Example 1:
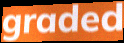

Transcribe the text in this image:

graded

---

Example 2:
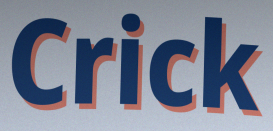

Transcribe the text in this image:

Crick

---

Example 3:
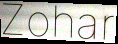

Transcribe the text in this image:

Zohar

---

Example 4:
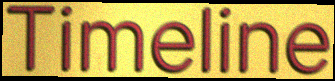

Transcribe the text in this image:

Timeline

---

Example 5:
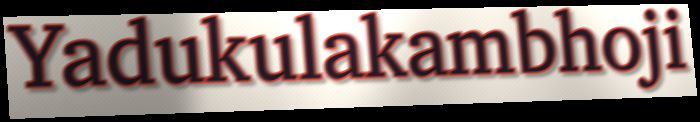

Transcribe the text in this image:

Yadukulakambhoji